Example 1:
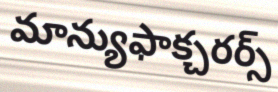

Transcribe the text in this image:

మాన్యుఫాక్చరర్స్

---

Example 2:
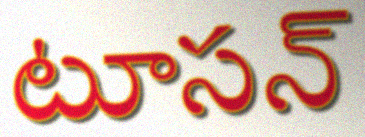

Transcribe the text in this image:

టూసన్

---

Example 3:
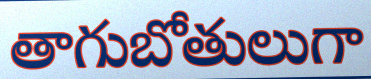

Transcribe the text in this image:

తాగుబోతులుగా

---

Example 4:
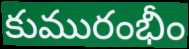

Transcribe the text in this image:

కుమురంభీం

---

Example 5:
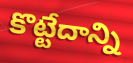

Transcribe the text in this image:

కొట్టేదాన్ని